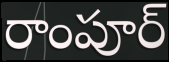
రాంపూర్